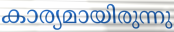
കാര്യമായിരുന്നു